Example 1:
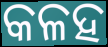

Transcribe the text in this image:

କଳହ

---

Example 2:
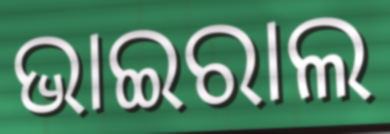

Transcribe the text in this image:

ଭାଇରାଲ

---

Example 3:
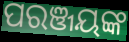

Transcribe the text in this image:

ପରଞ୍ଜୟଙ୍କ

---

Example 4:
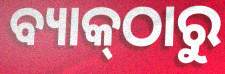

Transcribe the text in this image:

ବ୍ୟାକ୍‌ଠାରୁ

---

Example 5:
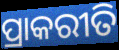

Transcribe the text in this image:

ପ୍ରାକରୀତି